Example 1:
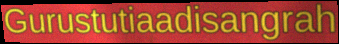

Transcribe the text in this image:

Gurustutiaadisangrah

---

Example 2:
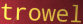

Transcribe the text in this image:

trowel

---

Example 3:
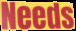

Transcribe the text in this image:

Needs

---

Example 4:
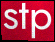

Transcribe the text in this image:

stp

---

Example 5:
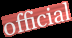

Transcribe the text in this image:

official